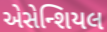
એસેન્શિયલ